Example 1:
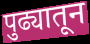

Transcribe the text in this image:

पुढ्यातून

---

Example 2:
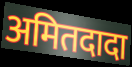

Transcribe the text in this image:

अमितदादा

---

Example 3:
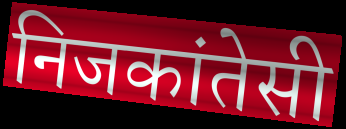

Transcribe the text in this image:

निजकांतेसी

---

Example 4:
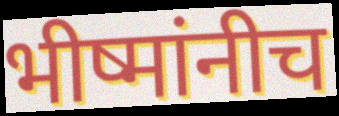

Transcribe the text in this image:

भीष्मांनीच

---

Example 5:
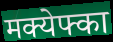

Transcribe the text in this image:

मक्येफ्का